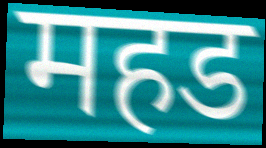
महड